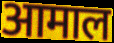
आमाल